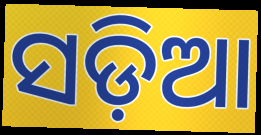
ସଡ଼ିଆ